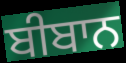
ਬੀਬਾਨ